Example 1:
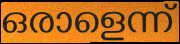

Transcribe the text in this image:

ഒരാളെന്ന്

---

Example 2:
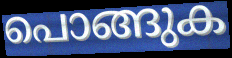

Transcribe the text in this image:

പൊങ്ങുക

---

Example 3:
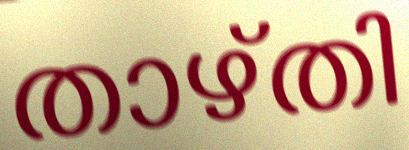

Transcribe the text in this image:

താഴ്തി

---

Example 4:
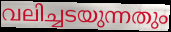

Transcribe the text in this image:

വലിച്ചടയുന്നതും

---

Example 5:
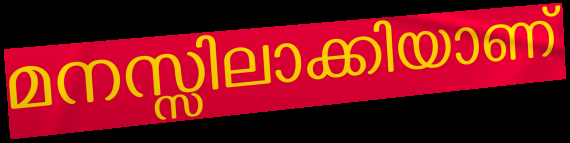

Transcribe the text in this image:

മനസ്സിലാക്കിയാണ്